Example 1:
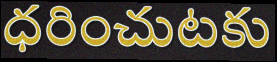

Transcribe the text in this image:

ధరించుటకు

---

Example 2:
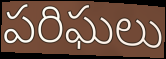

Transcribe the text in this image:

పరిఘలు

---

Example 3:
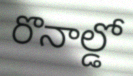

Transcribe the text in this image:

రొనాల్డో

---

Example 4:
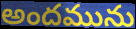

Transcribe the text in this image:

అందమును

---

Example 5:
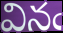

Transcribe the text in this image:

వినఁ